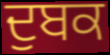
ਦੁਬਕ